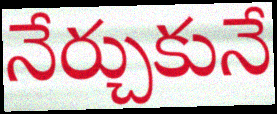
నేర్చుకునే